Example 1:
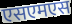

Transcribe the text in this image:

एसएमएस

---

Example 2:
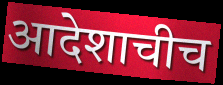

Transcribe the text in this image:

आदेशाचीच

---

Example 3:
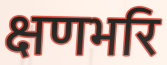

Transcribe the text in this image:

क्षणभरि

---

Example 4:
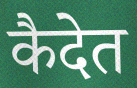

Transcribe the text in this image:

कैदेत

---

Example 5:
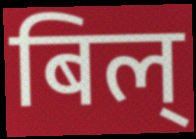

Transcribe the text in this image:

बिल्